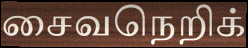
சைவநெறிக்